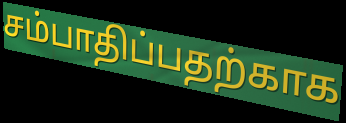
சம்பாதிப்பதற்காக